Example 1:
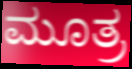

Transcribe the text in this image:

ಮೂತ್ರ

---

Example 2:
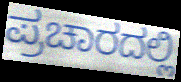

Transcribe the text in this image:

ಪ್ರಚಾರದಲ್ಲಿ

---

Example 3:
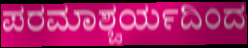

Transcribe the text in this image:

ಪರಮಾಶ್ಚರ್ಯದಿಂದ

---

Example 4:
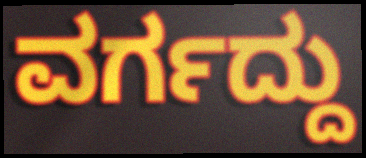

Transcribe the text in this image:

ವರ್ಗದ್ದು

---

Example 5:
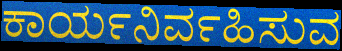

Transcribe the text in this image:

ಕಾರ್ಯನಿರ್ವಹಿಸುವ